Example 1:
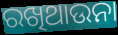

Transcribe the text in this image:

ରଖିଥାଉନା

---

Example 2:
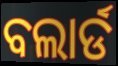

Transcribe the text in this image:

ବଲାର୍ଡ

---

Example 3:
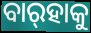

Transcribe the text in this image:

ବାର୍‍ହାକୁ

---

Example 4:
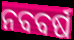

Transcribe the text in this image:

ନବବର୍ଷ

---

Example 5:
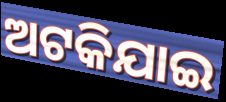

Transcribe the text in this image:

ଅଟକିଯାଇ